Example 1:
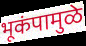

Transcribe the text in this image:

भूकंपामुळे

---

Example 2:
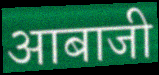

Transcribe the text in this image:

आबाजी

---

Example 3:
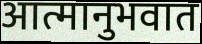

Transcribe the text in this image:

आत्मानुभवात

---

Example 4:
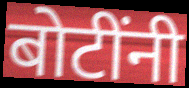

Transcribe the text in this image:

बोटींनी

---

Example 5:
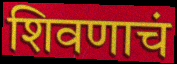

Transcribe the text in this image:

शिवणाचं